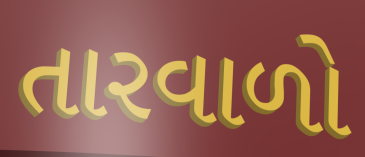
તારવાળો